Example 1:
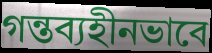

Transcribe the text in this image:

গন্তব্যহীনভাবে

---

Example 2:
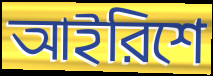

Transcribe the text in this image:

আইরিশে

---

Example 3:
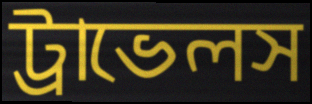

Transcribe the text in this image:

ট্রাভেলস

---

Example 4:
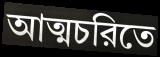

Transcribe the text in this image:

আত্মচরিতে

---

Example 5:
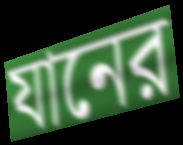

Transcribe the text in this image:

যানের